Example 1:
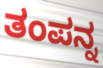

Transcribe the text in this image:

ತಂಪನ್ನ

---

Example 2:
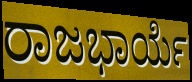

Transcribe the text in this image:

ರಾಜಭಾರ್ಯೆ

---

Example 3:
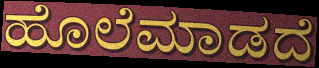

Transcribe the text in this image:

ಹೊಲೆಮಾಡದೆ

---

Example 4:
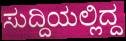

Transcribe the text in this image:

ಸುದ್ದಿಯಲ್ಲಿದ್ದ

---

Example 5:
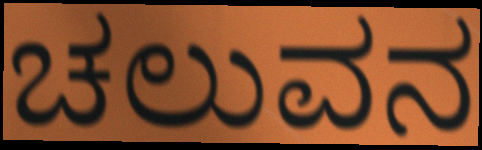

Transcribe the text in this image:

ಚಲುವನ